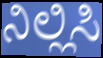
ನಿಲ್ಲಿಸಿ